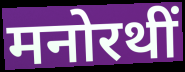
मनोरथीं